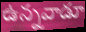
ఉన్నవాడూ